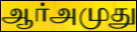
ஆர்அமுது